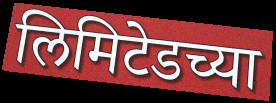
लिमिटेडच्या